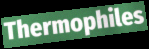
Thermophiles